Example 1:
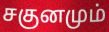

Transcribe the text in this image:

சகுனமும்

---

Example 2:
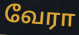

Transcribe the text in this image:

வேரா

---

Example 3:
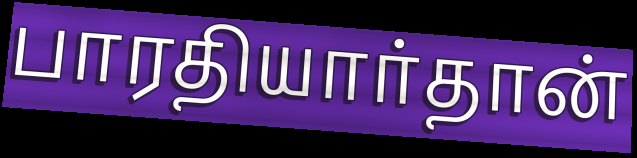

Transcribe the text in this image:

பாரதியார்தான்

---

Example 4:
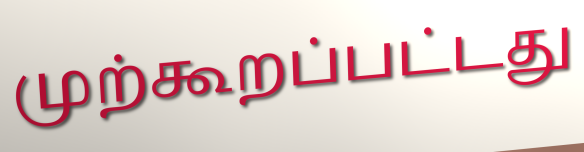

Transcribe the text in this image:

முற்கூறப்பட்டது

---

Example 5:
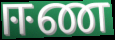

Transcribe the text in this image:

ஈண